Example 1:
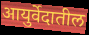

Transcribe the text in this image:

आयुर्वेदातील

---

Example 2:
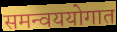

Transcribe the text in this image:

समन्वययोगात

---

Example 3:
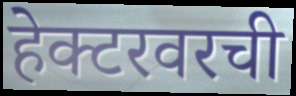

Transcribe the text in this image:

हेक्टरवरची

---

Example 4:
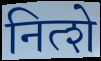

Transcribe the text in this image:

नित्शे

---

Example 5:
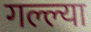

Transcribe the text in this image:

गल्ल्या